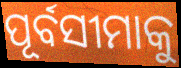
ପୂର୍ବସୀମାକୁ